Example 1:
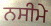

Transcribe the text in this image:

ਨਸੀਮੇ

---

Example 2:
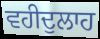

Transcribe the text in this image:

ਵਹੀਦੁਲਾਹ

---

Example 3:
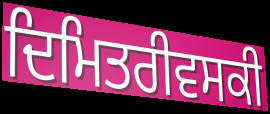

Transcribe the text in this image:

ਦਿਮਿਤਰੀਵਸਕੀ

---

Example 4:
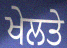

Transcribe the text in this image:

ਖੇਲਤੇ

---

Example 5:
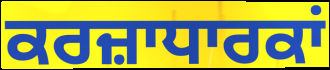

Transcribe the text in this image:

ਕਰਜ਼ਾਧਾਰਕਾਂ